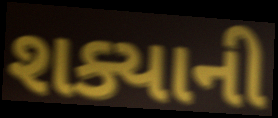
શક્યાની